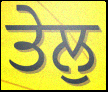
ਤੇਲੁ